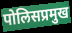
पोलिसप्रमुख